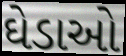
ઘેડાઓ